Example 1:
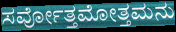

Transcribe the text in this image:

ಸರ್ವೋತ್ತಮೋತ್ತಮನು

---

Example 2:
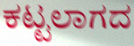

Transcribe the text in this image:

ಕಟ್ಟಲಾಗದ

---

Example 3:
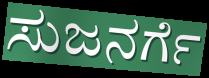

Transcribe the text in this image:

ಸುಜನರ್ಗೆ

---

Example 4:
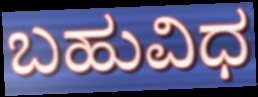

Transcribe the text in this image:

ಬಹುವಿಧ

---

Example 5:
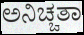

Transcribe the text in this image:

ಅನಿಚ್ಚತಾ